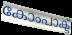
കോംപാക്ട്